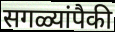
सगळ्यांपैकी